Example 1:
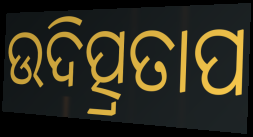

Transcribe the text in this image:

ଉଦିତ୍ପ୍ରତାପ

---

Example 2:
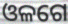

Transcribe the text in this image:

ଓଳଗେ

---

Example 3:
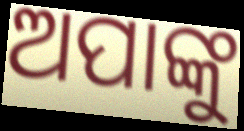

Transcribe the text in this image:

ଅପାଙ୍କୁ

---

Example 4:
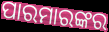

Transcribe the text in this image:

ପାରମାରଙ୍କର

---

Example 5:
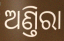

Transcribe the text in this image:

ଅଣ୍ତିରା